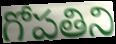
గోపతిని